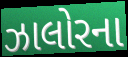
ઝાલોરના